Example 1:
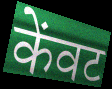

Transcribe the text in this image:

केंवट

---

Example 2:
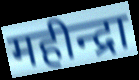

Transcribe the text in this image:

महीन्द्रा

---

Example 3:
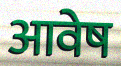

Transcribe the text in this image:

आवेष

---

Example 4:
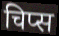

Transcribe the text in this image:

चिप्स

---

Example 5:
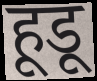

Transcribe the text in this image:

हूडू